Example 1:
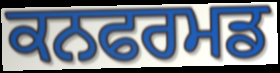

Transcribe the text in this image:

ਕਨਫਰਮਡ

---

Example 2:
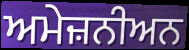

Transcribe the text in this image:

ਅਮੇਜ਼ਨੀਅਨ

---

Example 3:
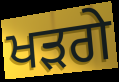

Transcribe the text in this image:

ਖੜਗੇ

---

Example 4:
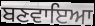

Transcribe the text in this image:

ਬਣਵਾਇਆ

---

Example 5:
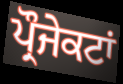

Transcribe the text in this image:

ਪ੍ਰੌਜੇਕਟਾਂ